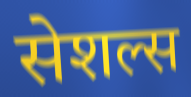
सेशल्स